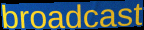
broadcast